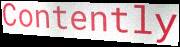
Contently